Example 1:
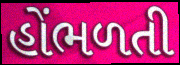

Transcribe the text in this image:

હોંભળતી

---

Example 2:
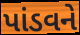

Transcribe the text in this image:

પાંડવને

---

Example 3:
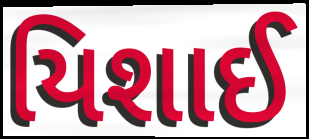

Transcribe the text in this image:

યિશાઈ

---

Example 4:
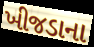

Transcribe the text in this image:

ખીજડાના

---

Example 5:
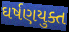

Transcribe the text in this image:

ઘર્ષણયુક્ત